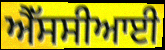
ਐੱਸਸੀਆਈ